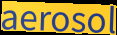
aerosol